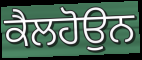
ਕੈਲਹੋਉਨ